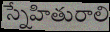
స్నేహితురాలి